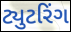
ટ્યુટરિંગ